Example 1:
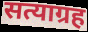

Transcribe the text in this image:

सत्याग्रह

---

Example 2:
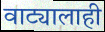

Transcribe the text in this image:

वाट्यालाही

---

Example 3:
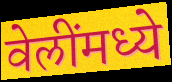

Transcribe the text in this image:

वेलींमध्ये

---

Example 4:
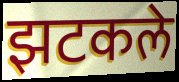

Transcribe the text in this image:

झटकले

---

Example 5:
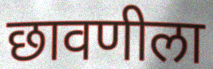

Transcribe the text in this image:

छावणीला